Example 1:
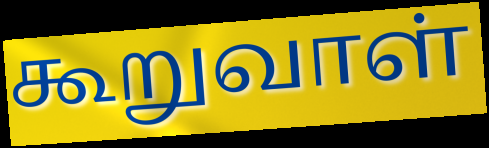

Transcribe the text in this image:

கூறுவாள்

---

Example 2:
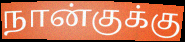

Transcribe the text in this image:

நான்குக்கு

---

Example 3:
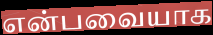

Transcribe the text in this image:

என்பவையாக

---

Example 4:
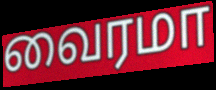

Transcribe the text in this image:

வைரமா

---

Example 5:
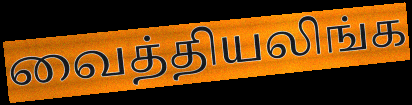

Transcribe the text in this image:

வைத்தியலிங்க